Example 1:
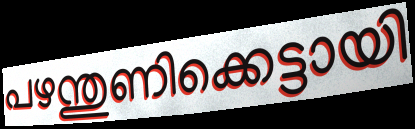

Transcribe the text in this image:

പഴന്തുണിക്കെട്ടായി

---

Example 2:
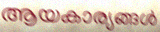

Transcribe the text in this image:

ആയകാര്യങ്ങൾ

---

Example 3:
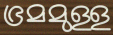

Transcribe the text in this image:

ഭ്രമമുള്ള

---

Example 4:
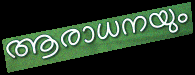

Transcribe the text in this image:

ആരാധനയും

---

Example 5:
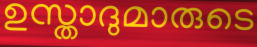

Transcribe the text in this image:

ഉസ്താദുമാരുടെ